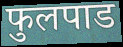
फुलपाड